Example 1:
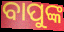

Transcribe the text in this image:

ବାପୁଙ୍କ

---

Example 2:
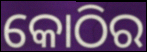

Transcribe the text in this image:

କୋଠିର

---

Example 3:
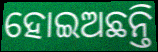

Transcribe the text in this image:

ହୋଇଅଛନ୍ତି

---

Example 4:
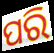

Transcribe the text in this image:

ପରି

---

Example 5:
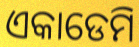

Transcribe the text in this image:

ଏକାଡେମି